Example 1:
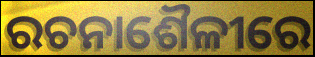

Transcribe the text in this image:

ରଚନାଶୈଳୀରେ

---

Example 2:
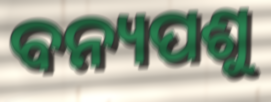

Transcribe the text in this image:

ବନ୍ୟପଶୁ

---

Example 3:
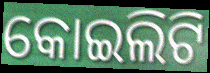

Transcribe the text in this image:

କୋଇଲିଟି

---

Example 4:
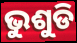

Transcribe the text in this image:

ଭୁଶୁଡି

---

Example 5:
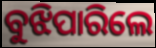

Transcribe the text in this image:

ବୁଝିପାରିଲେ